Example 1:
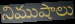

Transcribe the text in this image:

నిముషాలు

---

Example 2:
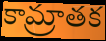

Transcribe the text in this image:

కామ్రాతక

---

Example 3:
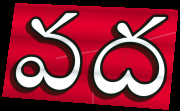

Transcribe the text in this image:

వద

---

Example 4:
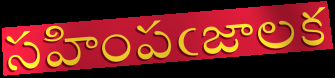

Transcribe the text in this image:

సహింపఁజాలక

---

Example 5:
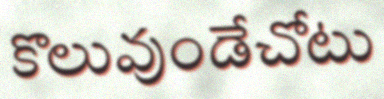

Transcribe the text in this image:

కొలువుండేచోటు